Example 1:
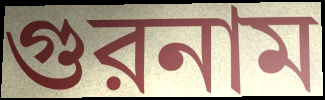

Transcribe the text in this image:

গুরনাম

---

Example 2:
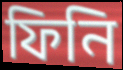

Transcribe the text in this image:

ফিনি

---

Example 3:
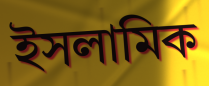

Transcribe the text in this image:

ইসলামিক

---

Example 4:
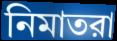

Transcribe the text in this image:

নিমাতরা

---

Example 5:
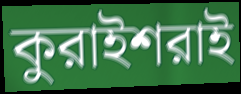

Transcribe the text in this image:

কুরাইশরাই